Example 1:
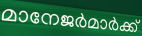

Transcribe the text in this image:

മാനേജർമാർക്ക്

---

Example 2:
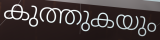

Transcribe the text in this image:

കുത്തുകയും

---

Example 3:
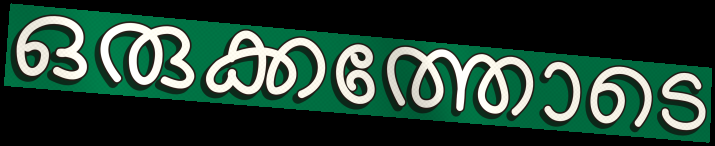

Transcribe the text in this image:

ഒരുക്കത്തോടെ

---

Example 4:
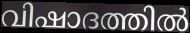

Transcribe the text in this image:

വിഷാദത്തിൽ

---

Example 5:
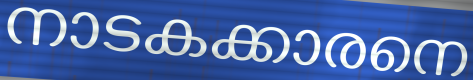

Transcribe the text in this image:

നാടകക്കാരനെ